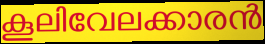
കൂലിവേലക്കാരൻ